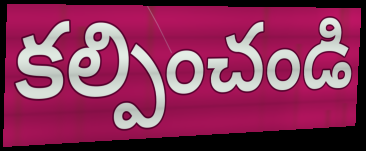
కల్పించండి